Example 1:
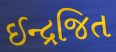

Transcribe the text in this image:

ઈન્દ્રજિત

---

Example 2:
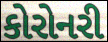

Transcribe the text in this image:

કોરોનરી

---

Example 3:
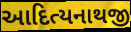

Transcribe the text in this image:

આદિત્યનાથજી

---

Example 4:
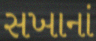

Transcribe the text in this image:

સખાનાં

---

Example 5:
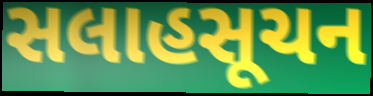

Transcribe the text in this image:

સલાહસૂચન